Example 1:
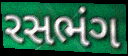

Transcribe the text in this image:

રસભંગ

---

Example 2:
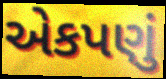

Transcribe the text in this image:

એકપણું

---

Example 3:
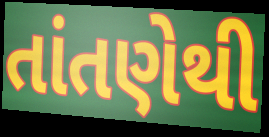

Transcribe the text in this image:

તાંતણેથી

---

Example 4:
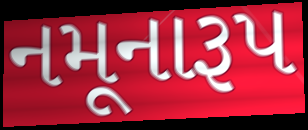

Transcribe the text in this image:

નમૂનારૂપ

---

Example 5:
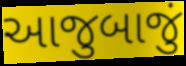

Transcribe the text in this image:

આજુબાજું